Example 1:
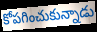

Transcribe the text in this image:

కోపగించుకున్నాడు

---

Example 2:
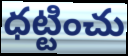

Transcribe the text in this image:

ధట్టించు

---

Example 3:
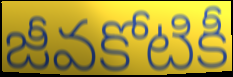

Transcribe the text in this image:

జీవకోటికీ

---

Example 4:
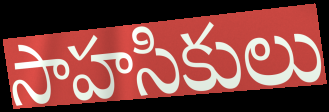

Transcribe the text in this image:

సాహసికులు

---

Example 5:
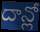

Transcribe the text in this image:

దాన్లో